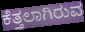
ಕೆತ್ತಲಾಗಿರುವ